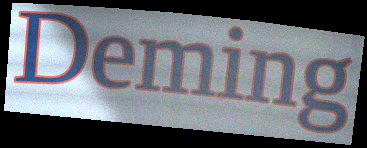
Deming